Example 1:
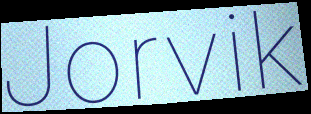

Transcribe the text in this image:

Jorvik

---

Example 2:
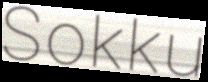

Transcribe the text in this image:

Sokku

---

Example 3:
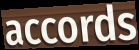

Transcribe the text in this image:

accords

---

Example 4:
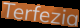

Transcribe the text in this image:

Terfezia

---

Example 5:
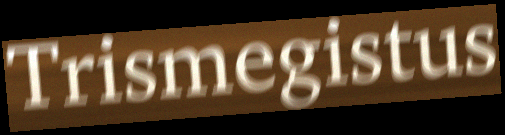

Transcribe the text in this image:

Trismegistus